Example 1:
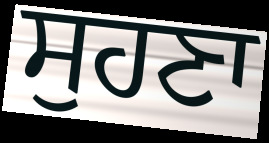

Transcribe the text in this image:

ਸੁਹਣਾ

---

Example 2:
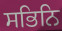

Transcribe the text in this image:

ਸਭਿਨਿ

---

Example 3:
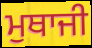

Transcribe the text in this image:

ਮੁਥਾਜੀ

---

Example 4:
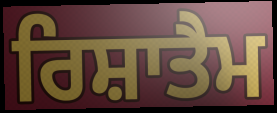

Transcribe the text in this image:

ਰਿਸ਼ਾਤੈਮ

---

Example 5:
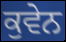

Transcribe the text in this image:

ਕੁਵੇਨ